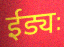
ईड्यः